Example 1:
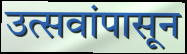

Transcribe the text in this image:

उत्सवांपासून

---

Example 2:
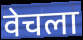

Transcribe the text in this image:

वेचला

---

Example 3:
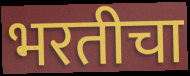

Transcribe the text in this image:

भरतीचा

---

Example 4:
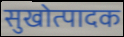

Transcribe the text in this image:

सुखोत्पादक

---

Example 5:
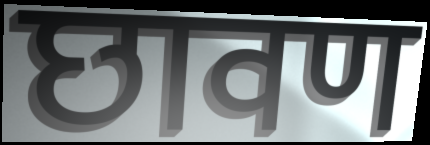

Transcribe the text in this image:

छावण